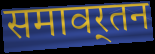
समावर्तन